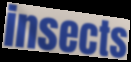
insects